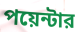
পয়েন্টার